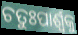
ଚତୁଃପାର୍ଶ୍ୱକୁ